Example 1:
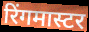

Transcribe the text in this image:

रिंगमास्टर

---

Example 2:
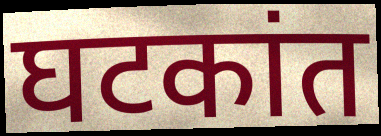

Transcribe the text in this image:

घटकांत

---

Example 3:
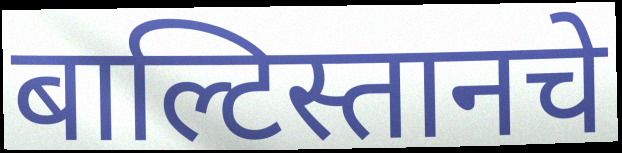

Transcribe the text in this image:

बाल्टिस्तानचे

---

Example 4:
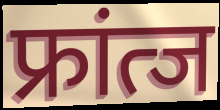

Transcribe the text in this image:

फ्रांत्ज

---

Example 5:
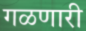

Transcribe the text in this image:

गळणारी